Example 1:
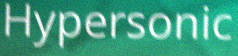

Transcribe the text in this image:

Hypersonic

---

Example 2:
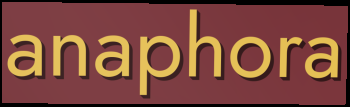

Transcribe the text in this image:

anaphora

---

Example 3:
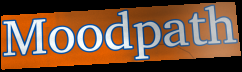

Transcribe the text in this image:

Moodpath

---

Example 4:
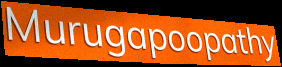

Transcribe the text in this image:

Murugapoopathy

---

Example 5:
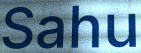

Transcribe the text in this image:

Sahu